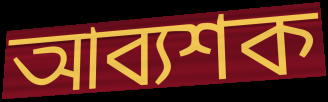
আব্যশক